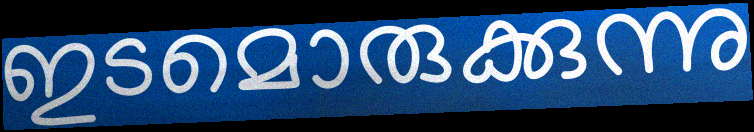
ഇടമൊരുക്കുന്നു